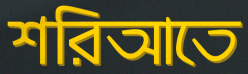
শরিআতে